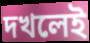
দখলেই